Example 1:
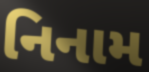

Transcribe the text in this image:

નિનામ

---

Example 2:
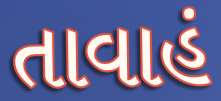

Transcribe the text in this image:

તાવાહં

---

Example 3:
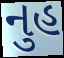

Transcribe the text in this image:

નુહ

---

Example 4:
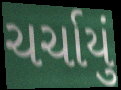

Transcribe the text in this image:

ચર્ચાયું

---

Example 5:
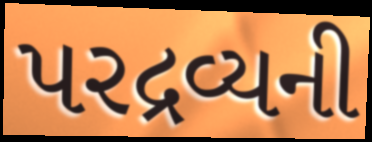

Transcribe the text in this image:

પરદ્રવ્યની